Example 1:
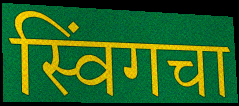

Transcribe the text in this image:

स्विंगचा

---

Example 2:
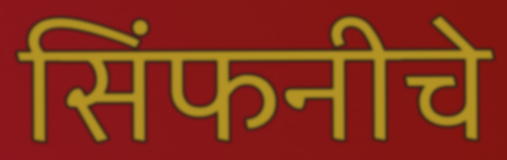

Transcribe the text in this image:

सिंफनीचे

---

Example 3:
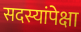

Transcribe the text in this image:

सदस्यांपेक्षा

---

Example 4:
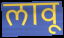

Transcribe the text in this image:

लावू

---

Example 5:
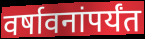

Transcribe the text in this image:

वर्षावनांपर्यंत